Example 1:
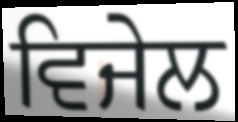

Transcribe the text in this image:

ਵਿਜੇਲ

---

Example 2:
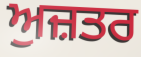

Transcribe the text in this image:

ਅੁਜ਼ਤਰ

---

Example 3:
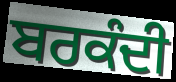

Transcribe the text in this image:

ਬਰਕੰਦੀ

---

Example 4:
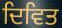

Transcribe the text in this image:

ਦਿਵਿਤ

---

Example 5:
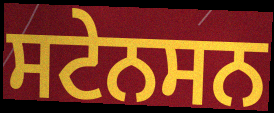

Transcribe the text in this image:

ਸਟੇਨਸਨ